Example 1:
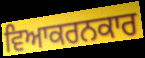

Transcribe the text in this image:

ਵਿਆਕਰਨਕਾਰ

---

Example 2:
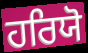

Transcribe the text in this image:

ਹਰਿਯੋ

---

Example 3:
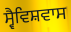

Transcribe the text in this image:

ਸ੍ਵੈਵਿਸ਼ਵਾਸ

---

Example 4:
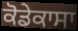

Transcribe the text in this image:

ਕੋਡੇਕਾਸਾ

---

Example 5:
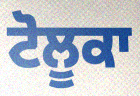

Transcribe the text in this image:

ਟੋਲੂਕਾ